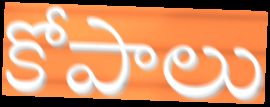
కోపాలు